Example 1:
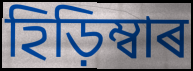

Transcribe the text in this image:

হিড়িম্বাৰ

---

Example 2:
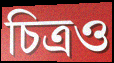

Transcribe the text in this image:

চিত্ৰও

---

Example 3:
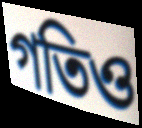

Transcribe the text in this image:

গতিও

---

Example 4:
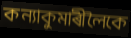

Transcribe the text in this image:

কন্যাকুমাৰীলৈকে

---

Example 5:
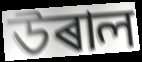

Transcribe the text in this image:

উৰাল